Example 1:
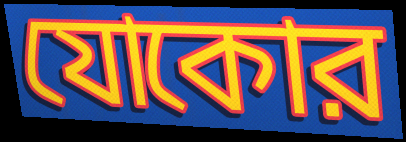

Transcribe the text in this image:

যোকোর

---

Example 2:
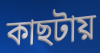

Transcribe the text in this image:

কাছটায়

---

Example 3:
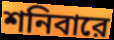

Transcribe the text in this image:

শনিবারে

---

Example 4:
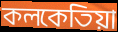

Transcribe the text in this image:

কলকেতিয়া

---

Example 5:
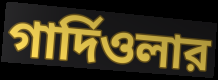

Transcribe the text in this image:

গার্দিওলার